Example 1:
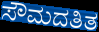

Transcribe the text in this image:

ಸೌಮದತಿತ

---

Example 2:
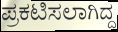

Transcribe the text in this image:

ಪ್ರಕಟಿಸಲಾಗಿದ್ದ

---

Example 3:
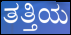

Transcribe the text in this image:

ತತ್ತಿಯ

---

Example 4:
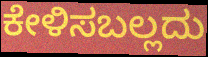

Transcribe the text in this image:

ಕೇಳಿಸಬಲ್ಲದು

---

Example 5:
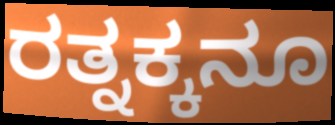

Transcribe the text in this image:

ರತ್ನಕ್ಕನೂ